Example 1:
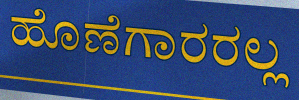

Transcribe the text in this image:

ಹೊಣೆಗಾರರಲ್ಲ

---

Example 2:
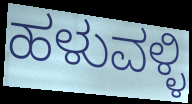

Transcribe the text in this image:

ಹಳುವಳ್ಳಿ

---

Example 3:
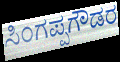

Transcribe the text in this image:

ಸಿಂಗಪ್ಪಗೌಡರ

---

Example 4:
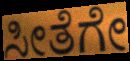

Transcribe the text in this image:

ಸೀತೆಗೇ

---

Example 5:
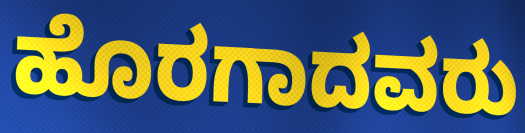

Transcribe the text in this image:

ಹೊರಗಾದವರು